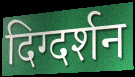
दिग्दर्शन